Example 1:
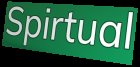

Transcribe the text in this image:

Spirtual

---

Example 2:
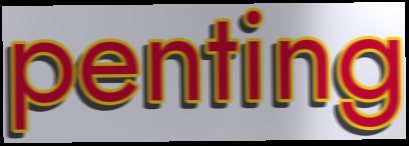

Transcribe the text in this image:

penting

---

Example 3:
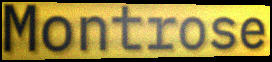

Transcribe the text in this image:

Montrose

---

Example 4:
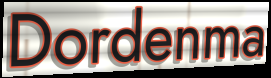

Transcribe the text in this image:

Dordenma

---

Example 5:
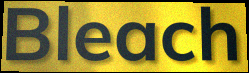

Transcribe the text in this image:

Bleach